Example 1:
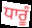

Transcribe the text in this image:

ਧਾਰੂੰ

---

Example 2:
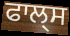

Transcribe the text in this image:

ਫਾਲ੍ਸ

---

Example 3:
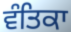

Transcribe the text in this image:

ਵੰਤਿਕਾ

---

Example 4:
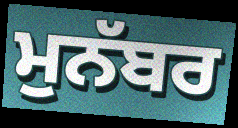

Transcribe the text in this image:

ਮੁਨੱਬਰ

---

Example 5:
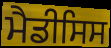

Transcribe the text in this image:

ਮੈਡੀਸਿਸ